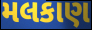
મલકાણ